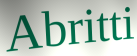
Abritti